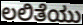
ಲಲಿತೆಯು